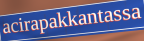
acirapakkantassa